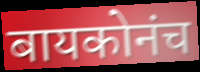
बायकोनंच